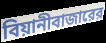
বিয়ানীবাজারের